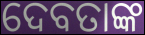
ଦେବତାଙ୍କ